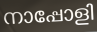
നാപ്പോളി